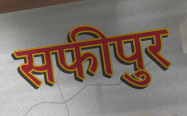
सफीपुर